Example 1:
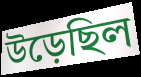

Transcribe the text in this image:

উড়েছিল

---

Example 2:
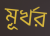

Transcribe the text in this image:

মূর্খর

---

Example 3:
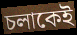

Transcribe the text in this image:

চলাকেই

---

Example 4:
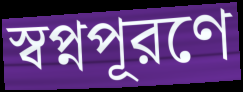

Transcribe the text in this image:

স্বপ্নপূরণে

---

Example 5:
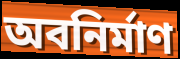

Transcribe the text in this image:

অবনির্মাণ